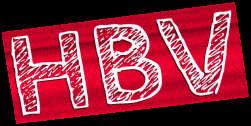
HBV